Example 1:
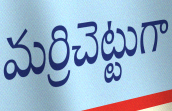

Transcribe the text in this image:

మర్రిచెట్టుగా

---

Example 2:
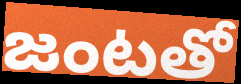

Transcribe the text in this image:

జంటతో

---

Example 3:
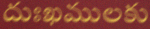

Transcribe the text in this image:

దుఃఖములకు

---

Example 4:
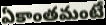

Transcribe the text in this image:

ఏకాంతమంటే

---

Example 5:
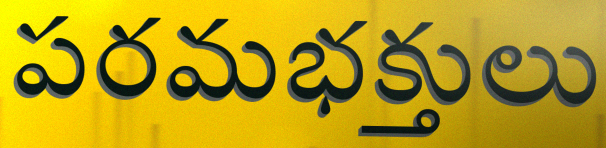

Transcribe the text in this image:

పరమభక్తులు